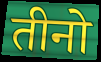
तीनो